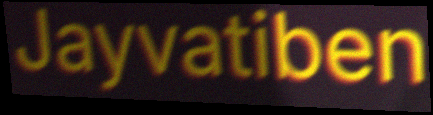
Jayvatiben